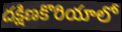
దక్షిణకొరియాలో